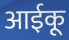
आईकू